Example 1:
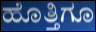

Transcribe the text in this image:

ಹೊತ್ತಿಗೂ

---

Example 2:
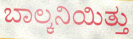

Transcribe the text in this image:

ಬಾಲ್ಕನಿಯಿತ್ತು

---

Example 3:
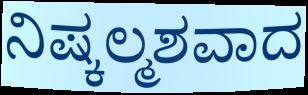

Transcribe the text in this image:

ನಿಷ್ಕಲ್ಮಶವಾದ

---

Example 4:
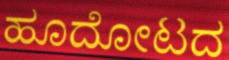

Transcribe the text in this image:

ಹೂದೋಟದ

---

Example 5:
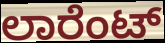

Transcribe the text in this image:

ಲಾರೆಂಟ್